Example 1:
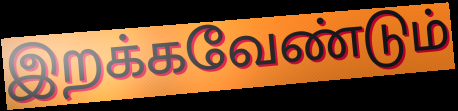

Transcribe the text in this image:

இறக்கவேண்டும்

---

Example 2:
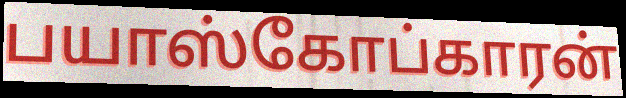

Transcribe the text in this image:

பயாஸ்கோப்காரன்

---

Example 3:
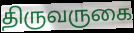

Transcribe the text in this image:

திருவருகை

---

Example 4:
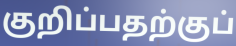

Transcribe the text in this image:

குறிப்பதற்குப்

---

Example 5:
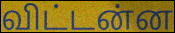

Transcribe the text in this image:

விட்டன்ன